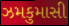
ઝમકુમાસી